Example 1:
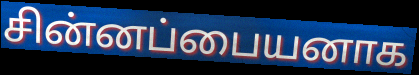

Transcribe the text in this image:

சின்னப்பையனாக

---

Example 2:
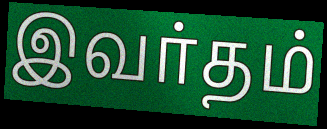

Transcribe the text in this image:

இவர்தம்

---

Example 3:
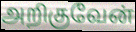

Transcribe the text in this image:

அறிகுவேன்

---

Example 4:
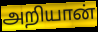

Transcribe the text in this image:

அறியான்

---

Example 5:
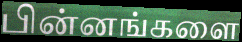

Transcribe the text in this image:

பின்னங்களை